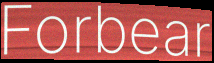
Forbear